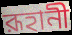
রূহানী